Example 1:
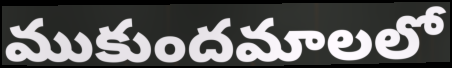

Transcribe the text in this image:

ముకుందమాలలో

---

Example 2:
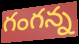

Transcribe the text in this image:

గంగన్న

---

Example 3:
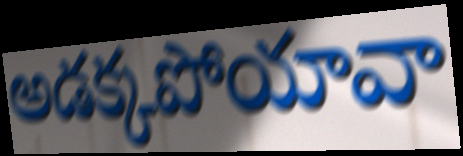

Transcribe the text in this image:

అడక్కపోయావా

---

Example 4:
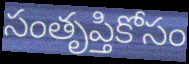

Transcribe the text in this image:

సంతృప్తికోసం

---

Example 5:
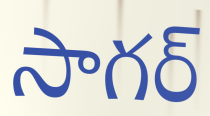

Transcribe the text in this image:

సాగర్